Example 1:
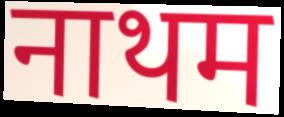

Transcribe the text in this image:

नाथम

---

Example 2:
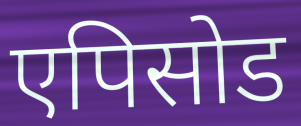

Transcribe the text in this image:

एपिसोड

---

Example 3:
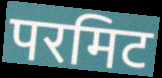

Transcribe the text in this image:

परमिट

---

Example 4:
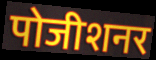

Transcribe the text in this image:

पोजीशनर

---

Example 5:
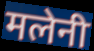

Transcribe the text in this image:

मलेनी